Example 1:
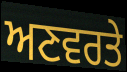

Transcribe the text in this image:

ਅਣਵਰਤੇ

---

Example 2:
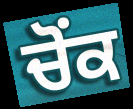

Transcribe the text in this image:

ਚੋਂਕ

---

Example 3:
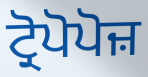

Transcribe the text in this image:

ਟ੍ਰੋਪੋਪੋਜ਼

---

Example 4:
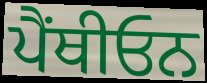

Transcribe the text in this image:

ਪੈਂਥੀਓਨ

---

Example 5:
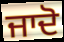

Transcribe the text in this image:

ਜਾਦੋ